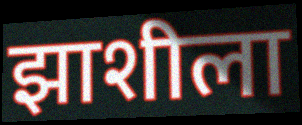
झाशीला